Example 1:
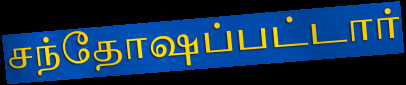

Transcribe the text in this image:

சந்தோஷப்பட்டார்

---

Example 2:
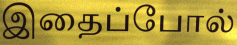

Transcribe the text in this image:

இதைப்போல்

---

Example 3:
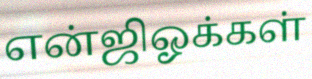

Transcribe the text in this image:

என்ஜிஓக்கள்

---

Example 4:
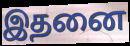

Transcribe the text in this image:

இதனை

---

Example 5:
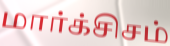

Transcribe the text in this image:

மார்க்சிசம்